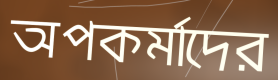
অপকর্মাদের